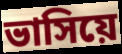
ভাসিয়ে